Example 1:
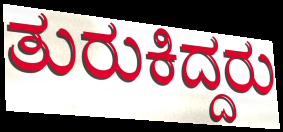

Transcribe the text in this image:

ತುರುಕಿದ್ದರು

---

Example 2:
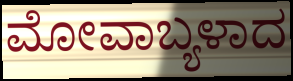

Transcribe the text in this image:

ಮೋವಾಬ್ಯಳಾದ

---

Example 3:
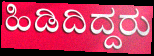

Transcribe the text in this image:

ಹಿಡಿದಿದ್ದರು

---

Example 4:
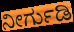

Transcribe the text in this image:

ನೀರ್ಗುಡಿ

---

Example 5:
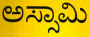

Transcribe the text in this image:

ಅಸ್ಸಾಮಿ